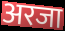
अरजा